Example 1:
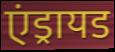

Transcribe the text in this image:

एंड्रायड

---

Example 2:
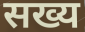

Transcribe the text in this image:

सख्य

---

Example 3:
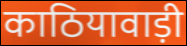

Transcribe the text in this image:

काठियावाड़ी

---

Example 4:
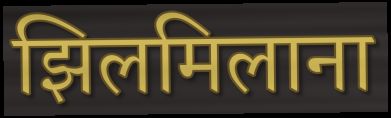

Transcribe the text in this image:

झिलमिलाना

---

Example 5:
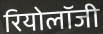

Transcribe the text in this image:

रियोलॉजी